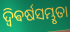
ଦ୍ଵିଵର୍ଷସମ୍ଭୃତା